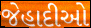
જેહાદીઓ